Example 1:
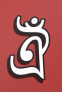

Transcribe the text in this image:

ঐঁ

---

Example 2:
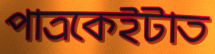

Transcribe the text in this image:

পাত্ৰকেইটাত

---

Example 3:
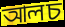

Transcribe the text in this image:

আলচ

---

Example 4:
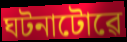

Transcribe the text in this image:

ঘটনাটোৱে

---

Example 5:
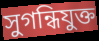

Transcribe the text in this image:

সুগন্ধিযুক্ত